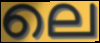
ലെ